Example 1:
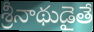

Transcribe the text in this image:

శ్రీనాథుడైతే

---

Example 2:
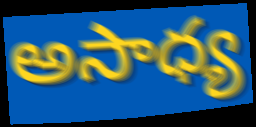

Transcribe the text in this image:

అసాధ్య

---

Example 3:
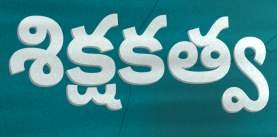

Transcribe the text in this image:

శిక్షకత్వ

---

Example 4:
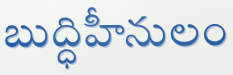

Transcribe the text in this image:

బుద్ధిహీనులం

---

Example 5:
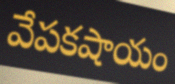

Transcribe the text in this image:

వేపకషాయం